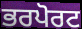
ਭਰਪੋਰਟ